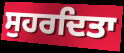
ਸੁਹਰਦਿਤਾ